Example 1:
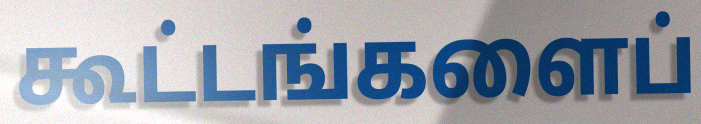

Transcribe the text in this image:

கூட்டங்களைப்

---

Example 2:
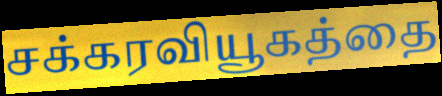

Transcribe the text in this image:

சக்கரவியூகத்தை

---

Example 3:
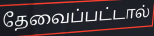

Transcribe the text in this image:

தேவைப்பட்டால்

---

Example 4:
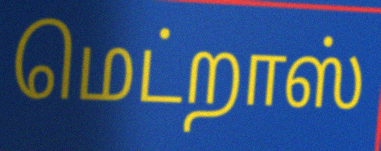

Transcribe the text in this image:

மெட்றாஸ்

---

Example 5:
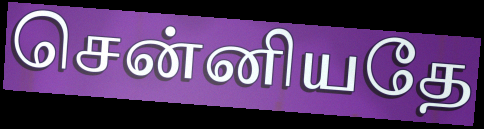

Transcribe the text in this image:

சென்னியதே